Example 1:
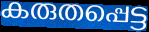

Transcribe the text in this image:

കരുതപ്പെട്ട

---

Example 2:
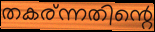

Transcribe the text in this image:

തകര്ന്നതിന്റെ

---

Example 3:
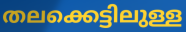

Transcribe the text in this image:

തലക്കെട്ടിലുള്ള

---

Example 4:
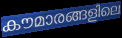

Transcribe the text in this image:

കൗമാരങ്ങളിലെ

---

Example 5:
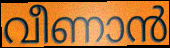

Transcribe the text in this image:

വീണാൻ